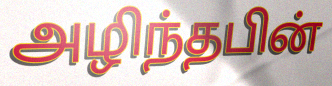
அழிந்தபின்